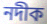
নদীক